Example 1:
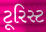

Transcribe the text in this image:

ટૂરિસ્ટ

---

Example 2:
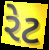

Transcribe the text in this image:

રેટ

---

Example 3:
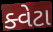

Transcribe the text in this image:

ક્વેટા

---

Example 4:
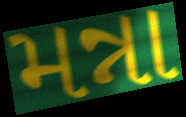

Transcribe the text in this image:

મન્ના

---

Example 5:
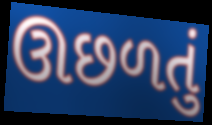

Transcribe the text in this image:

ઊછળતું